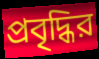
প্রবৃদ্ধির